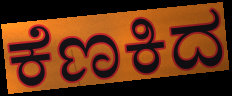
ಕೆಣಕಿದ